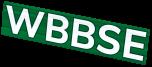
WBBSE